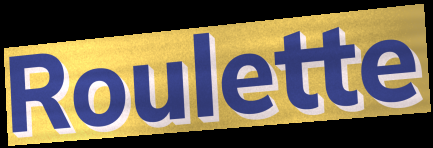
Roulette